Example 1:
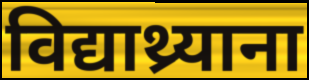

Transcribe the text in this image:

विद्याथ्र्याना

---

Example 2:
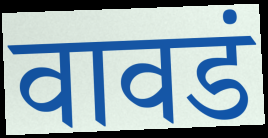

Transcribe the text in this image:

वावडं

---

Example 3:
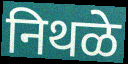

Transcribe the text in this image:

निथळे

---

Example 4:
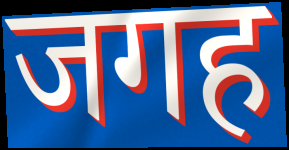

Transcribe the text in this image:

जगह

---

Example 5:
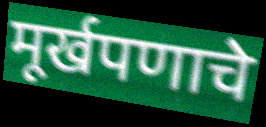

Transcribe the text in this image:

मूर्खपणाचे